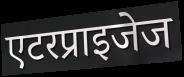
एटरप्राइजेज